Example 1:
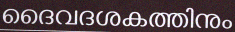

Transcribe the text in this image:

ദൈവദശകത്തിനും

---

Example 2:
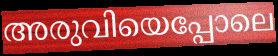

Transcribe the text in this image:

അരുവിയെപ്പോലെ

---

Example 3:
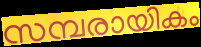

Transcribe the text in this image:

സമ്പരായികം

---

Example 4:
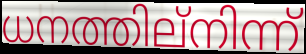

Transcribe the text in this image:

ധനത്തില്നിന്ന്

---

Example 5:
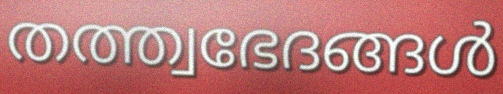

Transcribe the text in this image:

തത്ത്വഭേദങ്ങൾ